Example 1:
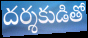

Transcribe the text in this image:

దర్శకుడితో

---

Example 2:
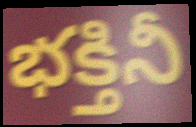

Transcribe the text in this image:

భక్తినీ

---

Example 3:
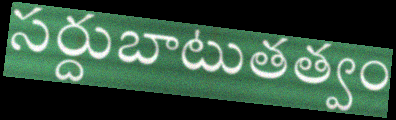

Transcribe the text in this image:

సర్దుబాటుతత్వం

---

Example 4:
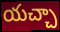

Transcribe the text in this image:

యచ్చా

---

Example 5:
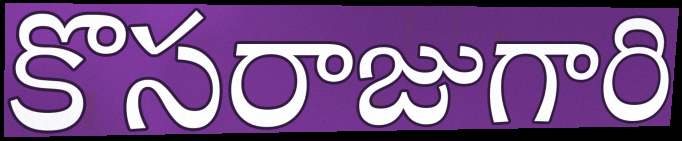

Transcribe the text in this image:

కొసరాజుగారి